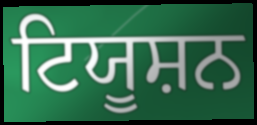
ਟਿਯੂਸ਼ਨ